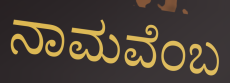
ನಾಮವೆಂಬ